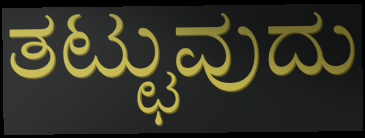
ತಟ್ಟುವುದು